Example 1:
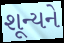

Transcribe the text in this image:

શૂન્યને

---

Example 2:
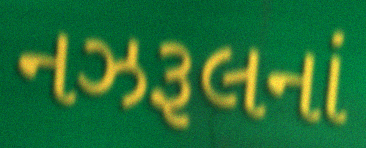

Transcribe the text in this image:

નઝરૂલનાં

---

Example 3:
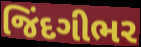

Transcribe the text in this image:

જિંદગીભર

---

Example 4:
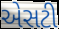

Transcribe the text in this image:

એસટી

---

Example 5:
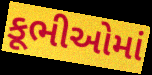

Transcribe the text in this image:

કૂભીઓમાં